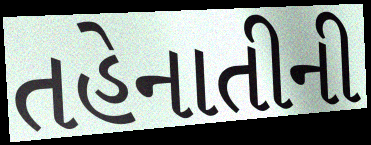
તહેનાતીની